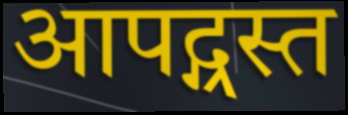
आपद्ग्रस्त